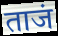
ताजं